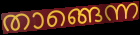
താങ്ങെന്ന